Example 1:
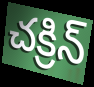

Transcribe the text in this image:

చక్రిన్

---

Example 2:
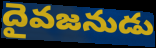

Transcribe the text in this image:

దైవజనుడు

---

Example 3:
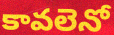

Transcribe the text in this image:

కావలెనో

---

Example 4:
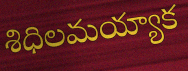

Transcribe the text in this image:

శిధిలమయ్యాక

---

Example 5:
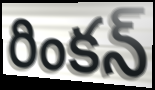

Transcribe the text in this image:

రింకన్